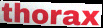
thorax